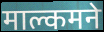
माल्कमने